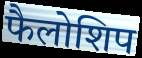
फैलोशिप